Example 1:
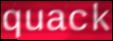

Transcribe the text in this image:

quack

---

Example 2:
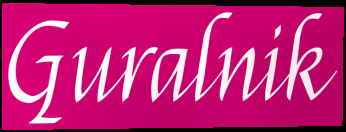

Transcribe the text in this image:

Guralnik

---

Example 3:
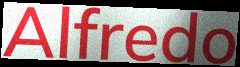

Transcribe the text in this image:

Alfredo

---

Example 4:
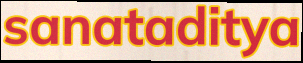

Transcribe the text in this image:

sanataditya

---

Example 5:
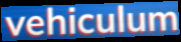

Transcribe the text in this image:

vehiculum